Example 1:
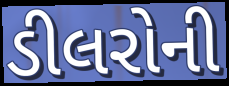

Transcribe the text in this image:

ડીલરોની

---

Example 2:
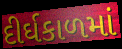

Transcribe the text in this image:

દીર્ઘકાળમાં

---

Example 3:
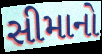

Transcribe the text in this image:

સીમાનો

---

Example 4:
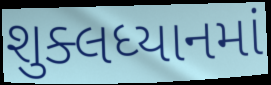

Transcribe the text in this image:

શુક્લધ્યાનમાં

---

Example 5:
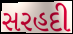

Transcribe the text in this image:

સરહદી